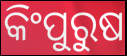
କିଂପୁରୁଷ